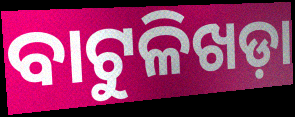
ବାଟୁଳିଖଡ଼ା